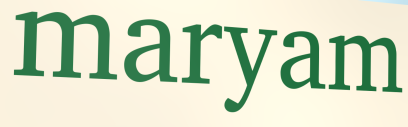
maryam